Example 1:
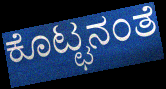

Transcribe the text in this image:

ಕೊಟ್ಟನಂತೆ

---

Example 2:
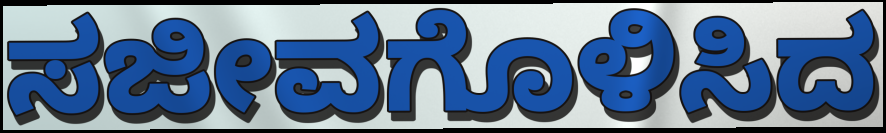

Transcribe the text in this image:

ಸಜೀವಗೊಳಿಸಿದ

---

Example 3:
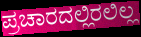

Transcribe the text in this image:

ಪ್ರಚಾರದಲ್ಲಿರಲಿಲ್ಲ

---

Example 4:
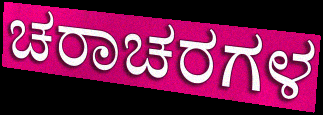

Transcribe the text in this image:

ಚರಾಚರಗಳ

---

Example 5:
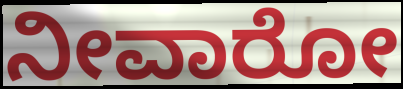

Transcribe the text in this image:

ನೀವಾರೋ